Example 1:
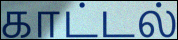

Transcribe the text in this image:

காட்டல்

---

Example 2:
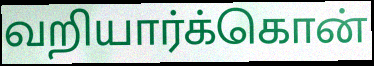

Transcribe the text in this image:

வறியார்க்கொன்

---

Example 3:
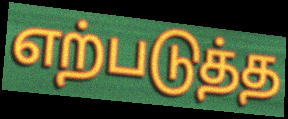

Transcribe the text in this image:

எற்படுத்த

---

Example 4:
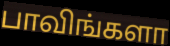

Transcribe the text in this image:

பாவிங்களா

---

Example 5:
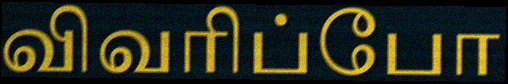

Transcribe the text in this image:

விவரிப்போ